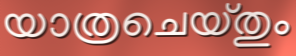
യാത്രചെയ്തും